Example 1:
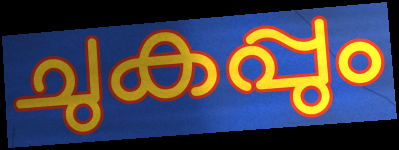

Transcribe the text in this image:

ചുകപ്പും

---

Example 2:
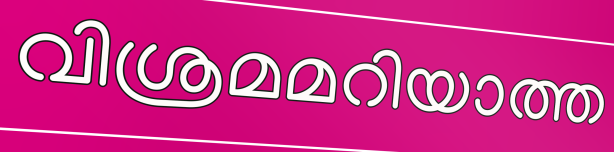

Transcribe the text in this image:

വിശ്രമമറിയാത്ത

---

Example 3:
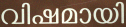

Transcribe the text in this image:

വിഷമായി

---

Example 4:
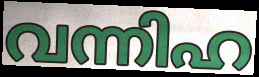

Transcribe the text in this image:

വന്നിഹ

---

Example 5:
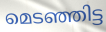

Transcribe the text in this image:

മെടഞ്ഞിട്ട